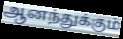
ஆனந்துக்கும்